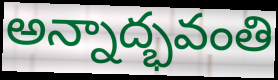
అన్నాద్భవంతి